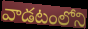
వాడటంలోని